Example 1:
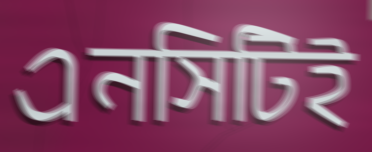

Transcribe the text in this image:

এনসিটিই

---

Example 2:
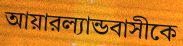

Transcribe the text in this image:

আয়ারল্যান্ডবাসীকে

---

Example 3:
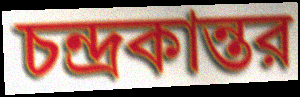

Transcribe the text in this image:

চন্দ্রকান্তর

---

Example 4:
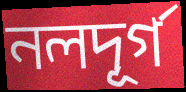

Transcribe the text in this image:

নলদূর্গ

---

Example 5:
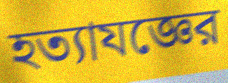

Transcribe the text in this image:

হত্যাযজ্ঞের